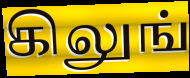
கிலுங்